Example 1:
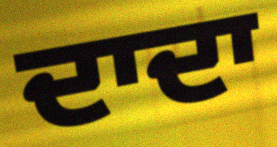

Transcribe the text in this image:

ਦਾਦਾ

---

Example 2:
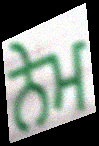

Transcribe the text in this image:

ਨੇਮ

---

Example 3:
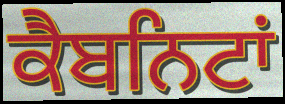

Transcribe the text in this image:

ਕੈਬਨਿਟਾਂ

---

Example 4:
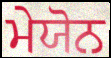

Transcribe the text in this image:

ਮੇਯੋਨ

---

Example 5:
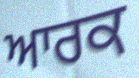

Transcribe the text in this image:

ਆਰਕ